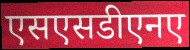
एसएसडीएनए